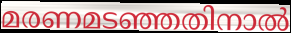
മരണമടഞ്ഞതിനാൽ